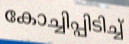
കോച്ചിപ്പിടിച്ച്